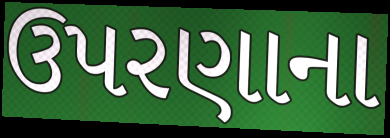
ઉપરણાના